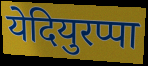
येदियुरप्पा